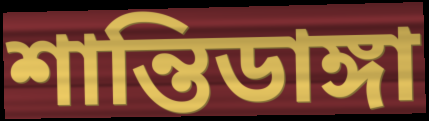
শান্তিডাঙ্গা